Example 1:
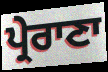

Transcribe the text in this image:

ਪ੍ਰੇਰਾਣਾ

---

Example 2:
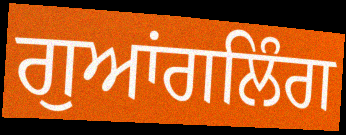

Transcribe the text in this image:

ਗੁਆਂਗਲਿੰਗ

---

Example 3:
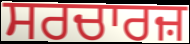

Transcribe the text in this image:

ਸਰਚਾਰਜ਼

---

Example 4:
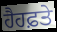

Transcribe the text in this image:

ਹੈਹਫ਼ਤੇ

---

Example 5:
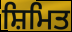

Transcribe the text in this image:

ਸ਼ਿਮਿਤ